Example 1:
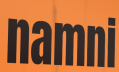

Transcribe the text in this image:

namni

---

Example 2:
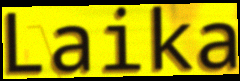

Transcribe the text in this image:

Laika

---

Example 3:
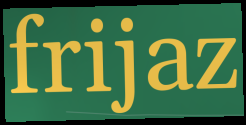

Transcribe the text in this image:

frijaz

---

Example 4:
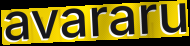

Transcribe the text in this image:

avararu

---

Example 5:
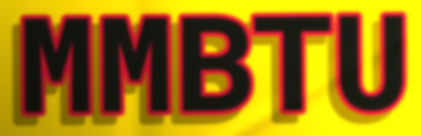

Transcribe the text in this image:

MMBTU